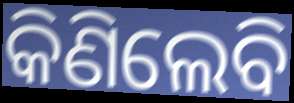
କିଣିଲେବି